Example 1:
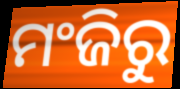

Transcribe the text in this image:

ମଂଜିରୁ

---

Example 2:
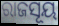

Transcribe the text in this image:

ରାଜସୂୟ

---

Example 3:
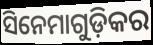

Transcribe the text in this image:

ସିନେମାଗୁଡ଼ିକର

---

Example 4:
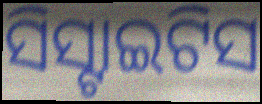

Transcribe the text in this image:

ସିସ୍ଟାଇଟିସ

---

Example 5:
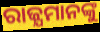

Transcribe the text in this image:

ରାଜ୍ଯମାନଙ୍କୁ